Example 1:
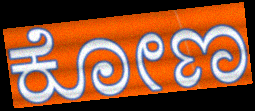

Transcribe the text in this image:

ಕೋಣ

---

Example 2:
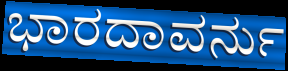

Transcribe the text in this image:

ಭಾರದಾವರ್ನು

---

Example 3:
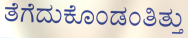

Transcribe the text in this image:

ತೆಗೆದುಕೊಂಡಂತಿತ್ತು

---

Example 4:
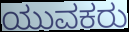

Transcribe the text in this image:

ಯುವಕರು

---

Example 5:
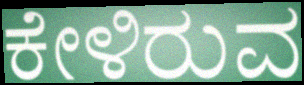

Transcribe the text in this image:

ಕೇಳಿರುವ